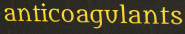
anticoagulants